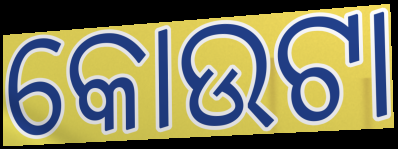
କୋଉଟା